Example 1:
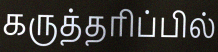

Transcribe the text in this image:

கருத்தரிப்பில்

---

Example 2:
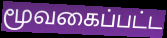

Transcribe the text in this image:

மூவகைப்பட்ட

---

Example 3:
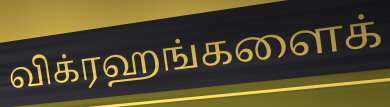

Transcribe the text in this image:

விக்ரஹங்களைக்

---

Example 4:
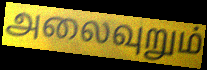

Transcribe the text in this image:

அலைவுறும்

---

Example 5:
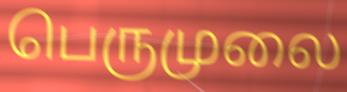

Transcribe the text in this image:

பெருமுலை